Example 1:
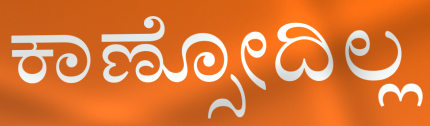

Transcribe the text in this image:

ಕಾಣ್ಸೋದಿಲ್ಲ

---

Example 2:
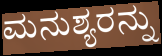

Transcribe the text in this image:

ಮನುಶ್ಯರನ್ನು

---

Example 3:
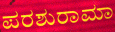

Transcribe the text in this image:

ಪರಶುರಾಮಾ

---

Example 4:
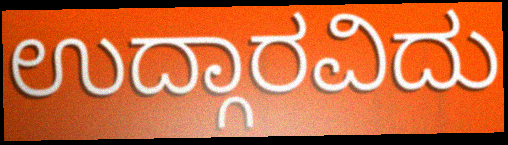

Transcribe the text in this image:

ಉದ್ಗಾರವಿದು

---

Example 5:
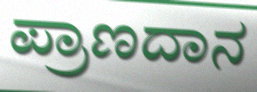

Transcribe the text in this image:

ಪ್ರಾಣದಾನ